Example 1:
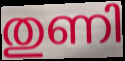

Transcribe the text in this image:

തുണി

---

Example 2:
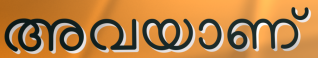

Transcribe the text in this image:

അവയാണ്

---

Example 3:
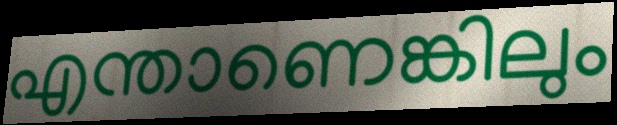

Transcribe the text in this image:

എന്താണെങ്കിലും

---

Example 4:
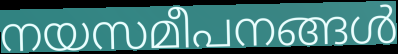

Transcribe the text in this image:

നയസമീപനങ്ങൾ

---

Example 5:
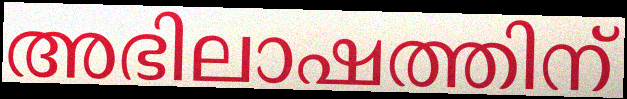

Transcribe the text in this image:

അഭിലാഷത്തിന്